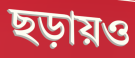
ছড়ায়ও